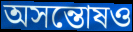
অসন্তোষও